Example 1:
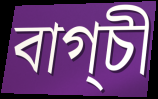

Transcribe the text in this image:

বাগ্চী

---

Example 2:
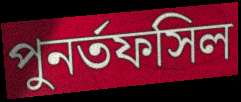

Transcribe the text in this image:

পুনর্তফসিল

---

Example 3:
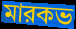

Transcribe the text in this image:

মারকভ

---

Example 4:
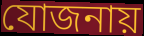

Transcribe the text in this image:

যোজনায়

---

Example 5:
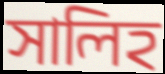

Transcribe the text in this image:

সালিহ